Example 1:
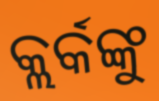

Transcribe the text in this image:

କ୍ଲର୍କଙ୍କୁ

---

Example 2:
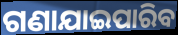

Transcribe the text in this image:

ଗଣାଯାଇପାରିବ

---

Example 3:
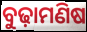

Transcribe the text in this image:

ବୁଢ଼ାମଣିଷ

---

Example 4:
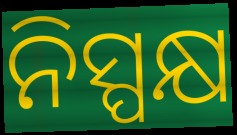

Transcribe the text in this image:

ନିସ୍ପକ୍ଷ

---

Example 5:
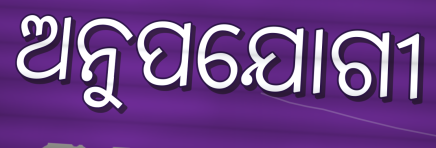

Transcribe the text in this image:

ଅନୁପଯୋଗୀ